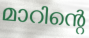
മാറിന്റെ